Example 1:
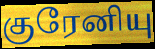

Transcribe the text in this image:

குரேனியு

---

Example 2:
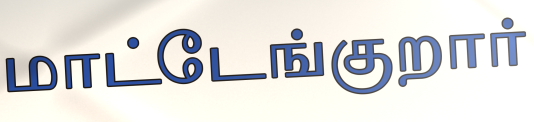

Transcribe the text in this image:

மாட்டேங்குறார்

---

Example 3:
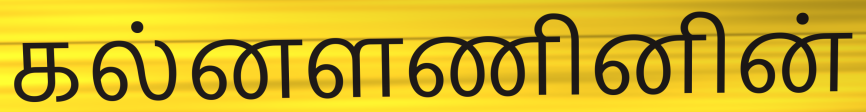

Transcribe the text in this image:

கல்னளணினின்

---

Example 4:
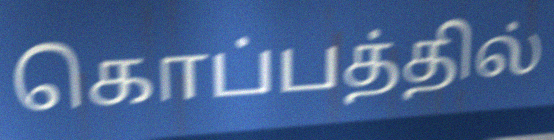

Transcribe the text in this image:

கொப்பத்தில்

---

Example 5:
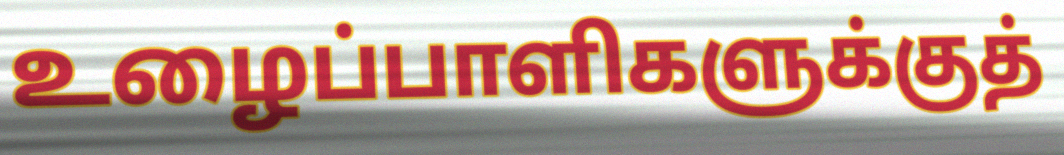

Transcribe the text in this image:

உழைப்பாளிகளுக்குத்